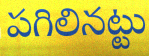
పగిలినట్టు